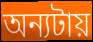
অন্যটায়